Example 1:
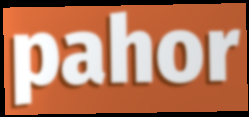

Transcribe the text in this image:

pahor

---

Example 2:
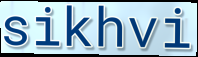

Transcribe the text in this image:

sikhvi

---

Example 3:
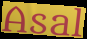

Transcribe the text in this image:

Asal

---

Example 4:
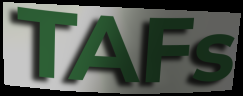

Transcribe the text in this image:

TAFs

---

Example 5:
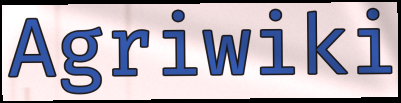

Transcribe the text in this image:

Agriwiki